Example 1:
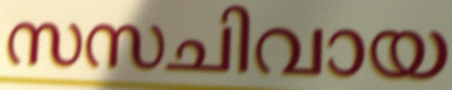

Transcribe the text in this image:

സസചിവായ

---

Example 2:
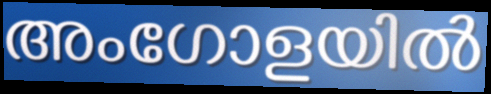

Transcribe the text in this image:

അംഗോളയിൽ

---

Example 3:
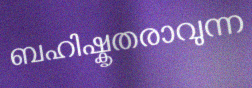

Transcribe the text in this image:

ബഹിഷ്കൃതരാവുന്ന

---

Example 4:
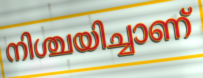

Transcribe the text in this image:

നിശ്ചയിച്ചാണ്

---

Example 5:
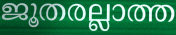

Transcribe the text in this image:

ജൂതരല്ലാത്ത